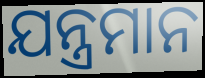
ଯନ୍ତ୍ରମାନ